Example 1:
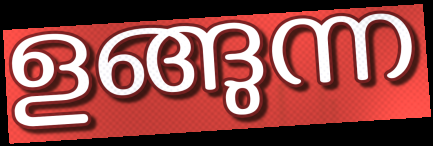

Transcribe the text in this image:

ളങ്ങുന്ന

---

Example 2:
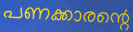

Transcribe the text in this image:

പണക്കാരന്റെ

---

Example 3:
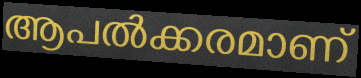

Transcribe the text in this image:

ആപൽക്കരമാണ്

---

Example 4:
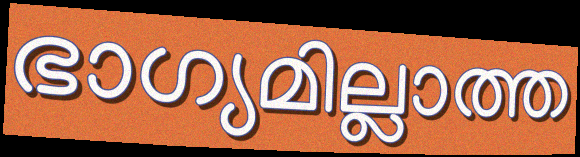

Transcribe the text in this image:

ഭാഗ്യമില്ലാത്ത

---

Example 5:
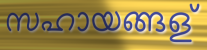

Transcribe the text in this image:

സഹായങ്ങള്